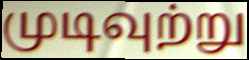
முடிவுற்று